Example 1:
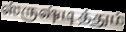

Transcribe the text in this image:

ஸ்ருஷ்டித்தும்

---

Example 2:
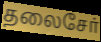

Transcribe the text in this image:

தலைசேர்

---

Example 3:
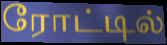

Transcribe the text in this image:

ரோட்டில்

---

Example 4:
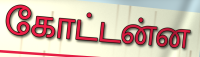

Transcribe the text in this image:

கோட்டன்ன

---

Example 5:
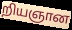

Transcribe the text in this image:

றியஞான